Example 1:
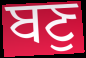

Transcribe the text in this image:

ਬਣੁ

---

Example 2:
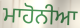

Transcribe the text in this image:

ਮਾਹੋਨੀਆ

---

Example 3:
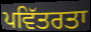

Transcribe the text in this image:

ਪਵਿੱਤਰਤਾ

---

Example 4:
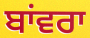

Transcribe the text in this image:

ਬਾਂਵਰਾ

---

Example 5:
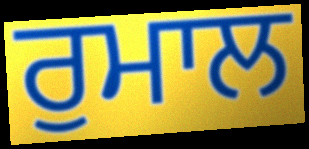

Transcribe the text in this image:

ਰੁਮਾਲ